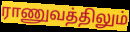
ராணுவத்திலும்